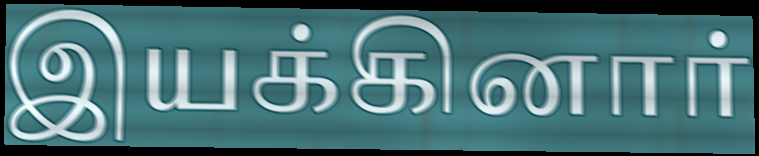
இயக்கினார்